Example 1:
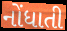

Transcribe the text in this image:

નોંધાતી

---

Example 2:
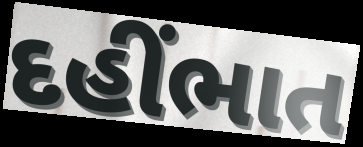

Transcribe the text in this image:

દહીંભાત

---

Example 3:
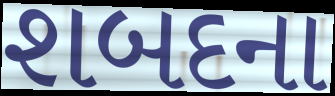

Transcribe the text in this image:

શબદના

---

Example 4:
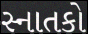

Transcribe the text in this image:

સ્નાતકો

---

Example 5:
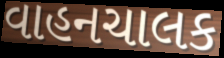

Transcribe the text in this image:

વાહનચાલક